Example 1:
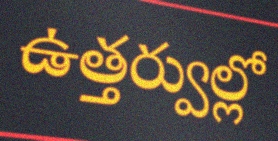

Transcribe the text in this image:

ఉత్తర్వుల్లో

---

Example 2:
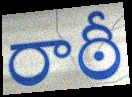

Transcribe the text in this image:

రాఠీ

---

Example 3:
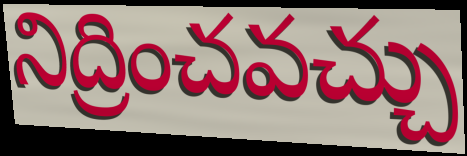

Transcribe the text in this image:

నిద్రించవచ్చు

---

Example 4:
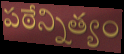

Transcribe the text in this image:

పఠేన్నిత్యం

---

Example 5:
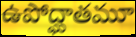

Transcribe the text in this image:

ఉపోద్ఘాతమూ